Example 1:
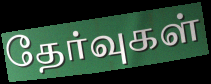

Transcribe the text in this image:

தேர்வுகள்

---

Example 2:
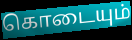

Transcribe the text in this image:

கொடையும்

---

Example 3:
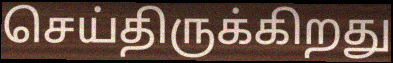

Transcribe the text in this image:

செய்திருக்கிறது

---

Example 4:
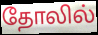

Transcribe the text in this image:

தோலில்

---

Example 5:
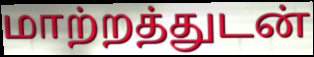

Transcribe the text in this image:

மாற்றத்துடன்